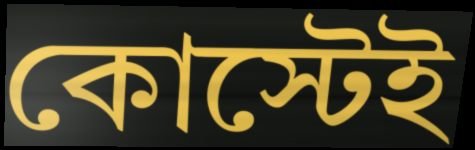
কোস্টেই